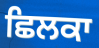
ਛਿਲਕਾ